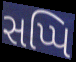
સપ્પિ